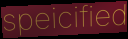
speicified